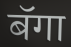
बॅगा